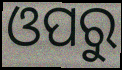
ଓପରୁ